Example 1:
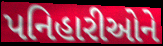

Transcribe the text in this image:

પનિહારીઓને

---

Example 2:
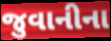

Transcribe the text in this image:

જુવાનીના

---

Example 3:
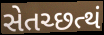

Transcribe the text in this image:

સેતચ્છત્થં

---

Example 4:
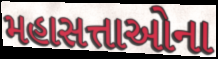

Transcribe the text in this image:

મહાસત્તાઓના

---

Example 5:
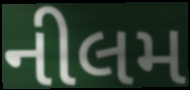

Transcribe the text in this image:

નીલમ